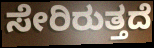
ಸೇರಿರುತ್ತದೆ